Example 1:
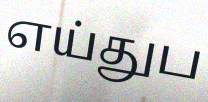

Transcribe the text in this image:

எய்துப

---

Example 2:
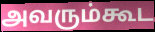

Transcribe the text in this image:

அவரும்கூட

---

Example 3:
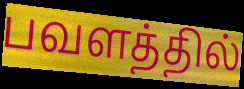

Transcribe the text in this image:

பவளத்தில்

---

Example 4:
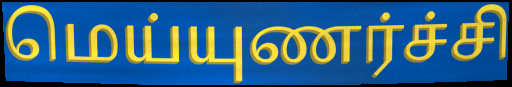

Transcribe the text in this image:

மெய்யுணர்ச்சி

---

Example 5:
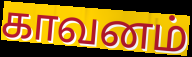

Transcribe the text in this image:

காவனம்